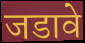
जडावे